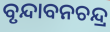
ବୃନ୍ଦାବନଚନ୍ଦ୍ର